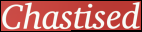
Chastised